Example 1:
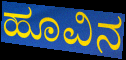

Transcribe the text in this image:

ಹೂವಿನ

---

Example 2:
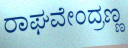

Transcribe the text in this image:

ರಾಘವೇಂದ್ರಣ್ಣ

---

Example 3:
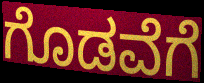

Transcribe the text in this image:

ಗೊಡವೆಗೆ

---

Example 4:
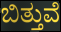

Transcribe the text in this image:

ಬಿತ್ತುವೆ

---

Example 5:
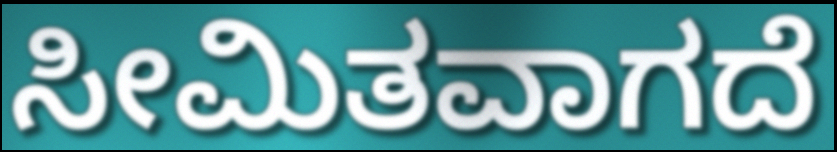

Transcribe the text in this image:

ಸೀಮಿತವಾಗದೆ